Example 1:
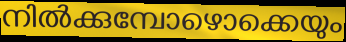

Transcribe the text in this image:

നിൽക്കുമ്പോഴൊക്കെയും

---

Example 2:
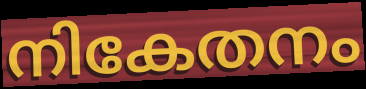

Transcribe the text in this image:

നികേതനം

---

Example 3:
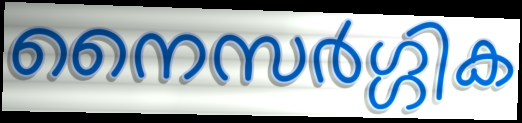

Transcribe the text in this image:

നൈസർഗ്ഗിക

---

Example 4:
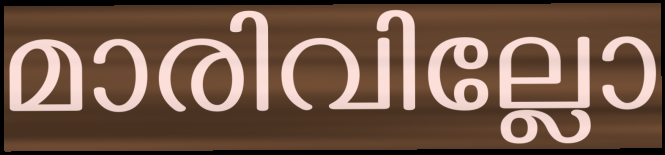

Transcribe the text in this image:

മാരിവില്ലോ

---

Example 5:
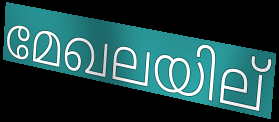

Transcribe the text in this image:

മേഖലയില്